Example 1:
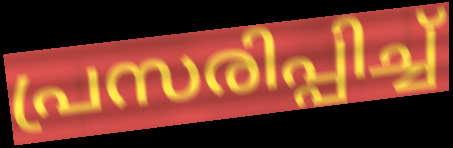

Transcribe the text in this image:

പ്രസരിപ്പിച്ച്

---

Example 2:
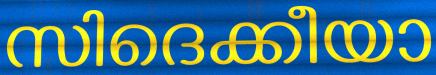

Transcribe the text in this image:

സിദെക്കീയാ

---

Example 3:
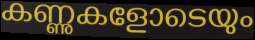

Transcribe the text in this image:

കണ്ണുകളോടെയും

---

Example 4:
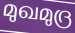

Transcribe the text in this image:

മുഖമുദ്ര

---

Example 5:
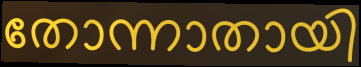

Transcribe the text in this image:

തോന്നാതായി